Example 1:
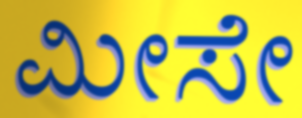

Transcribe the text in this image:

ಮೀಸೇ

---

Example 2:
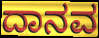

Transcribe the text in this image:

ದಾನವ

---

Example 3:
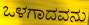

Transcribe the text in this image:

ಒಳಗಾದವನು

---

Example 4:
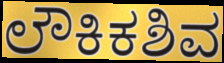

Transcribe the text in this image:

ಲೌಕಿಕಶಿವ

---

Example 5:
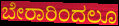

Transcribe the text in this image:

ಬೇರಾರಿಂದಲೂ